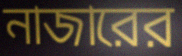
নাজারের